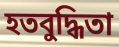
হতবুদ্ধিতা